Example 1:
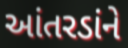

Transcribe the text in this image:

આંતરડાંને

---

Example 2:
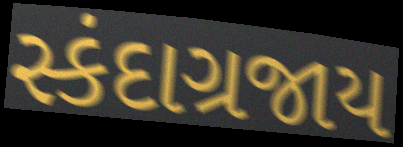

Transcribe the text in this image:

સ્કંદાગ્રજાય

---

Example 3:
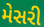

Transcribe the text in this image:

મેસરી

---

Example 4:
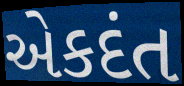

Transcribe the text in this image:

એકદંત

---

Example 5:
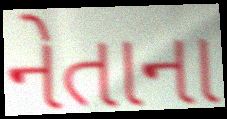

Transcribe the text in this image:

નેતાના